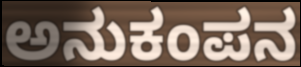
ಅನುಕಂಪನ